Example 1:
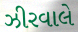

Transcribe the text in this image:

ઝીરવાલે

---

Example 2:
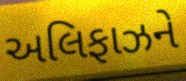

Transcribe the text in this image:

અલિફાઝને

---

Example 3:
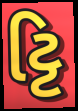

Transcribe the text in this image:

ટ્ટિ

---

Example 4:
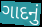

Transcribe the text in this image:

ગાદનું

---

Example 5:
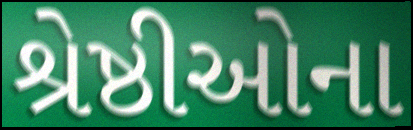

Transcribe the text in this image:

શ્રેષ્ઠીઓના